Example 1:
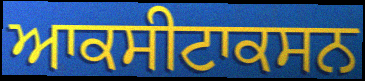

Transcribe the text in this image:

ਆਕਸੀਟਾਕਸਨ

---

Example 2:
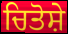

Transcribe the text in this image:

ਚਿਤੋਸ਼ੇ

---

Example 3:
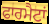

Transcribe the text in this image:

ਫਾਰਮੈਟਾਂ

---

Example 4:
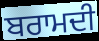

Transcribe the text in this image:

ਬਰਾਮਦੀ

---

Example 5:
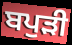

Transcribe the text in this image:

ਬਪੁੜੀ